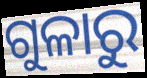
ଗୁଳାରୁ